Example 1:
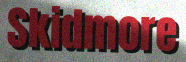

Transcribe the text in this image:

Skidmore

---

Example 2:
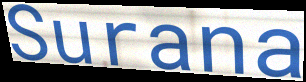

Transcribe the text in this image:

Surana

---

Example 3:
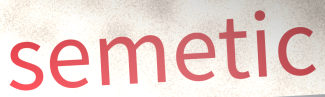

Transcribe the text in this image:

semetic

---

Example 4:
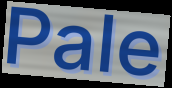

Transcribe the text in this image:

Pale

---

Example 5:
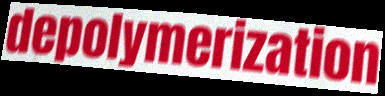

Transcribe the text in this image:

depolymerization